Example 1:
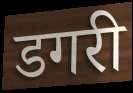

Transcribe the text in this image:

डगरी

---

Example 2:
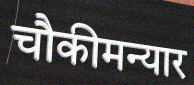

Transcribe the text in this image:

चौकीमन्यार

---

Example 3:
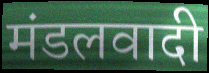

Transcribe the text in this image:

मंडलवादी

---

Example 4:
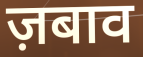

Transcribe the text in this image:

ज़बाव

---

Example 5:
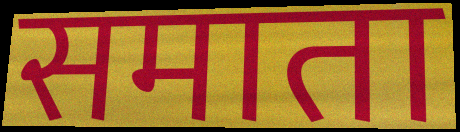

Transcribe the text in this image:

समाता